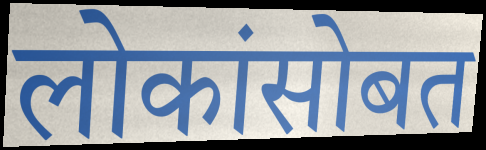
लोकांसोबत